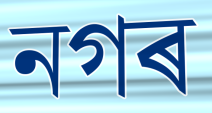
নগৰ